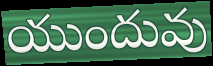
యుందువు